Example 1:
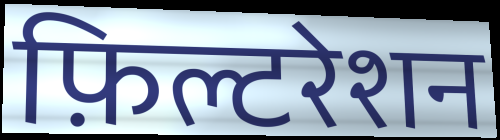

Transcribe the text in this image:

फ़िल्टरेशन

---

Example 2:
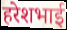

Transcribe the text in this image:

हरेशभाई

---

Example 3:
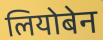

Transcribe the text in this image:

लियोबेन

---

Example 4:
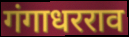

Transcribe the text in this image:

गंगाधरराव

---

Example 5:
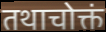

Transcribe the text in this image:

तथाचोक्तं